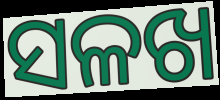
ସଳଖ